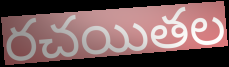
రచయితల